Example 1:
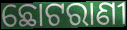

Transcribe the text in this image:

ଛୋଟରାଣୀ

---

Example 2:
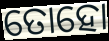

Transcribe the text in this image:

ତୋହୋ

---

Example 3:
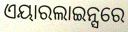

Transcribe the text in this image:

ଏୟାରଲାଇନ୍ସରେ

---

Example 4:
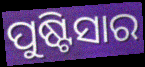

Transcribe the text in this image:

ପୁଷ୍ଟିସାର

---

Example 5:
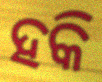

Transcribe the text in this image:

ହକି